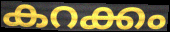
കറക്കം